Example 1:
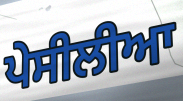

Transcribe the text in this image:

ਪੇਸੀਲੀਆ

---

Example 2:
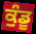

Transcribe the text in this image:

ਕੁੰਡੂ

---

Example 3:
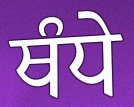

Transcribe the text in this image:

ਥੰਧੇ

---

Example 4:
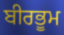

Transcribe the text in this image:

ਬੀਰਭੂਮ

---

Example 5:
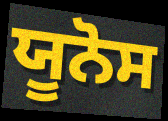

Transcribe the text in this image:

ਯੂਨੋਸ